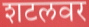
शटलवर